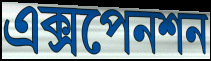
এক্সপেনশন